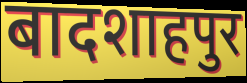
बादशाहपुर